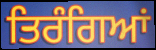
ਤਿਰੰਗਿਆਂ